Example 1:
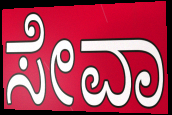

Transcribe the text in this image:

ಸೇವಾ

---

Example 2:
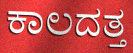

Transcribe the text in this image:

ಕಾಲದತ್ತ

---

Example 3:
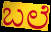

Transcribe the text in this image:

ಬಲೆ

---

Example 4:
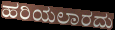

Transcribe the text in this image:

ಹರಿಯಲಾರದು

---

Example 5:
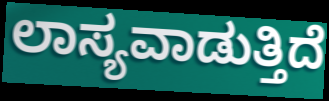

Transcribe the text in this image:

ಲಾಸ್ಯವಾಡುತ್ತಿದೆ